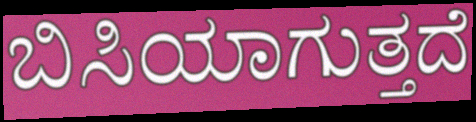
ಬಿಸಿಯಾಗುತ್ತದೆ